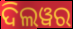
ଦିଲୱର